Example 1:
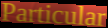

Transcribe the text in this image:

Particular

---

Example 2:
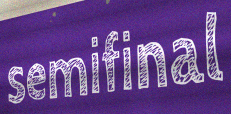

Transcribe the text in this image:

semifinal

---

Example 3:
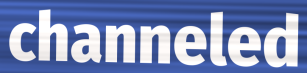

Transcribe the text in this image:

channeled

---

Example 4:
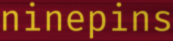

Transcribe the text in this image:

ninepins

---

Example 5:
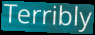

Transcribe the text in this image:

Terribly